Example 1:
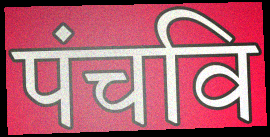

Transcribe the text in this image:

पंचवि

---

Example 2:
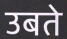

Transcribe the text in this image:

उबते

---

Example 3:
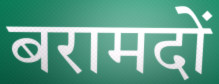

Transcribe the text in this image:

बरामदों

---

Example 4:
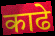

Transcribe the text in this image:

काढे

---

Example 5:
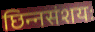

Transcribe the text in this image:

छिन्नसंशयः